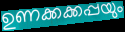
ഉണക്കക്കപ്പയും